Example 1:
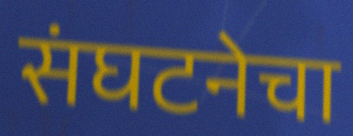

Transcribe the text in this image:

संघटनेचा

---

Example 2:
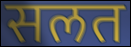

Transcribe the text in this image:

सलत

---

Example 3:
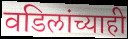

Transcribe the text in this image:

वडिलांच्याही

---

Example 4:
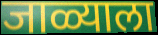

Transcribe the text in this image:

जाळ्याला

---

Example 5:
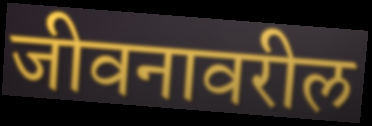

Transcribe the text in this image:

जीवनावरील